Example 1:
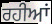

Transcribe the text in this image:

ਰਹੀਆਂ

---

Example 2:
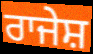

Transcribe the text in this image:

ਰਾਜੇਸ਼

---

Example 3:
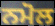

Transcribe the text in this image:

ਨਮੋਲ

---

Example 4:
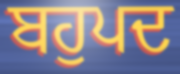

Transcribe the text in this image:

ਬਹੁਪਦ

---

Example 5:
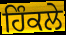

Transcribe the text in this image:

ਹਿੰਕਲੇ